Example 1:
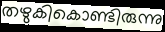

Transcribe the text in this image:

തഴുകികൊണ്ടിരുന്നു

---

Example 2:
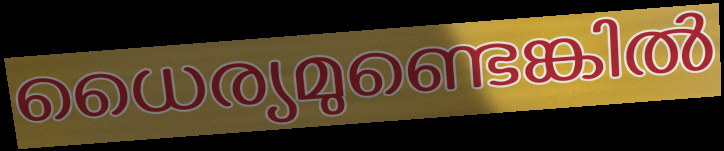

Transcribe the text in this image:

ധൈര്യമുണ്ടെങ്കിൽ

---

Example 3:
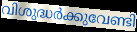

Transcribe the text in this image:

വിശുദ്ധർക്കുവേണ്ടി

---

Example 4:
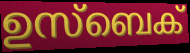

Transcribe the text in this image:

ഉസ്ബെക്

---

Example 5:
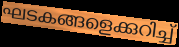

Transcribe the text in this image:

ഘടകങ്ങളെക്കുറിച്ച്